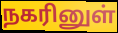
நகரினுள்